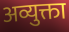
अव्युक्ता